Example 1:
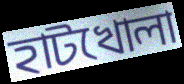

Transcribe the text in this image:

হাটখোলা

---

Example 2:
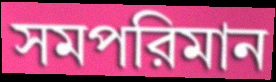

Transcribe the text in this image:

সমপরিমান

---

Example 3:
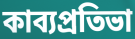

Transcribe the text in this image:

কাব্যপ্রতিভা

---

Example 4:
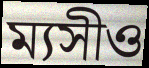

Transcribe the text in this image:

ম্যসীও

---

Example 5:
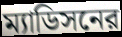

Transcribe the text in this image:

ম্যাডিসনের